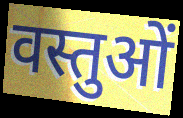
वस्तुओं